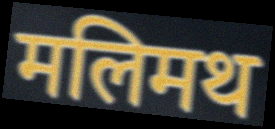
मलिमथ